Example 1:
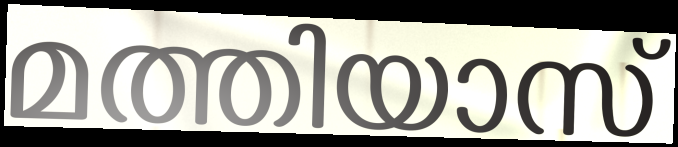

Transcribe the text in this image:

മത്തിയാസ്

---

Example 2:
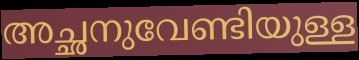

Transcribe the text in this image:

അച്ഛനുവേണ്ടിയുള്ള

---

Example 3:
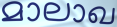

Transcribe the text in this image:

മാലാഖ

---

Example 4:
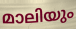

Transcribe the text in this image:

മാലിയും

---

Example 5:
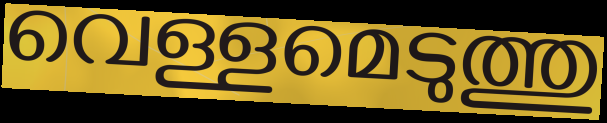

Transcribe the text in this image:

വെള്ളമെടുത്തു